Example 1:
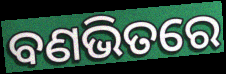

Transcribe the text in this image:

ବଣଭିତରେ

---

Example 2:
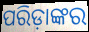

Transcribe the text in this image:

ପରିଡ଼ାଙ୍କର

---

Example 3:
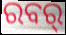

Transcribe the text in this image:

ରବର୍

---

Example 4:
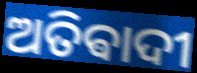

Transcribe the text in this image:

ଅତିଵାଦୀ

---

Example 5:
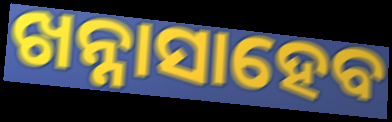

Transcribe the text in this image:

ଖନ୍ନାସାହେବ